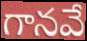
గానవే